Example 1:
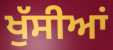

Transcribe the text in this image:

ਖੁੱਸੀਆਂ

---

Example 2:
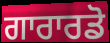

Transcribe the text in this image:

ਗਾਰਾਰਡੋ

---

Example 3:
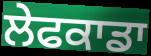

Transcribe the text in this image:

ਲੇਫਕਾਡਾ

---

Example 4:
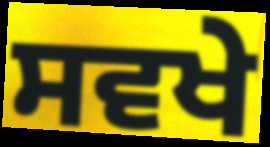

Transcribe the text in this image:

ਸਵਖੇ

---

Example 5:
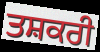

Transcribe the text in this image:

ਤਸ਼ਕਰੀ